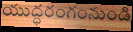
యుద్ధరంగంనుండి